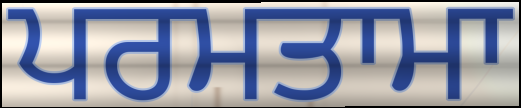
ਪਰਮਤਾਮਾ